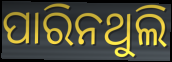
ପାରିନଥୁଲି